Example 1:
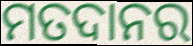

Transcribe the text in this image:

ମତଦାନର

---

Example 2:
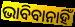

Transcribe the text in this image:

ଭାବିବାନାହିଁ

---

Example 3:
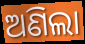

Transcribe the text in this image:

ଅଣିଲା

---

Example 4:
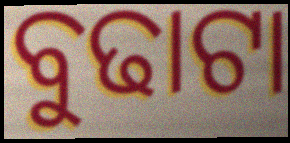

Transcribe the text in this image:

ବୁଢାଟା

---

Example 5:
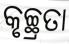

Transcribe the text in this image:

କୃଚ୍ଛ୍ରତା